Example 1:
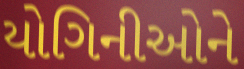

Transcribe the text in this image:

યોગિનીઓને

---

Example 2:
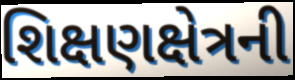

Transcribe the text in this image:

શિક્ષણક્ષેત્રની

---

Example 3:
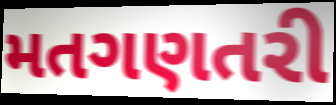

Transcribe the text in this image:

મતગણતરી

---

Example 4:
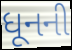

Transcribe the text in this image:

ધૂનની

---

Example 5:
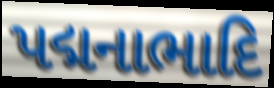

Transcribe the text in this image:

પદ્મનાભાદિ